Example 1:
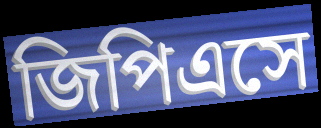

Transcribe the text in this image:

জিপিএসে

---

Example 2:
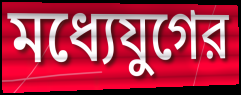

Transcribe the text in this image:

মধ্যেযুগের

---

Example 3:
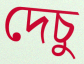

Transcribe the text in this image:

দেচু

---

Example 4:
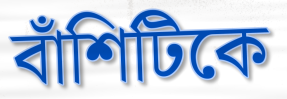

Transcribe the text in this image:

বাঁশিটিকে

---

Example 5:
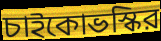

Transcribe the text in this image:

চাইকোভস্কির